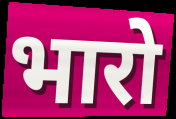
भारो